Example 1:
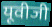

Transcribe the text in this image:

यूवीजी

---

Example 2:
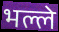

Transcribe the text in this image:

भल्ले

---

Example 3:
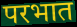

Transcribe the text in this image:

परभात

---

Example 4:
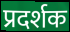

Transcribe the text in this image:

प्रदर्शक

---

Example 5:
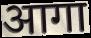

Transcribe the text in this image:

आगा